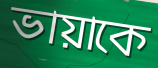
ভায়াকে